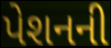
પેશનની